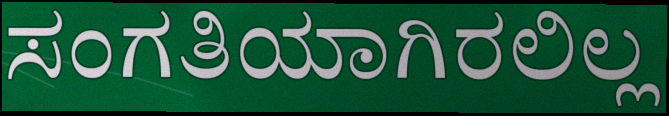
ಸಂಗತಿಯಾಗಿರಲಿಲ್ಲ